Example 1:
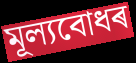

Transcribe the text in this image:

মূল্যবোধৰ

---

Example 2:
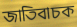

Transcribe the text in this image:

জাতিবাচক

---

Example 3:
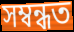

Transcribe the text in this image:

সম্বন্ধত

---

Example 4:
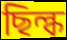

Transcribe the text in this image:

ছিল্ক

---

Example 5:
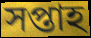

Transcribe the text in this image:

সপ্তাহ